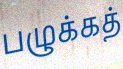
பழுக்கத்